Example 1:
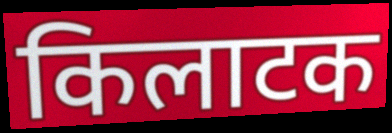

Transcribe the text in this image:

किलाटक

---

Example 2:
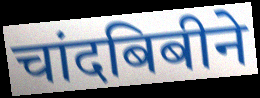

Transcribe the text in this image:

चांदबिबीने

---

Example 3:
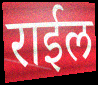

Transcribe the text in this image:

राईल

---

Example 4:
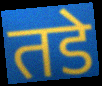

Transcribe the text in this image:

तडे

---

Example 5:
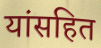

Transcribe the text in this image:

यांसहित